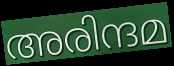
അരിന്ദമ